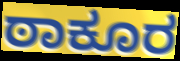
ಠಾಕೂರ